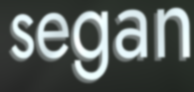
segan